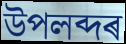
উপলব্দৰ